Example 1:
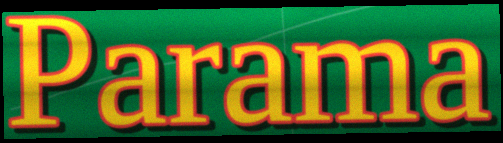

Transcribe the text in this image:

Parama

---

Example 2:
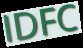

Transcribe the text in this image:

IDFC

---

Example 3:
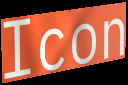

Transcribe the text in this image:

Icon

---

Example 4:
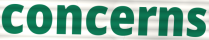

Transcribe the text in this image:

concerns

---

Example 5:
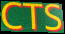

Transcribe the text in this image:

CTS